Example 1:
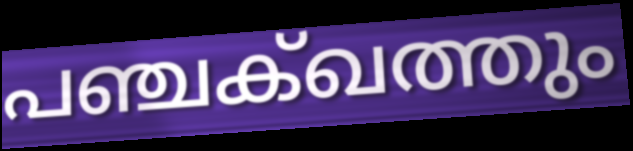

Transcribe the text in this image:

പഞ്ചക്ഖത്തും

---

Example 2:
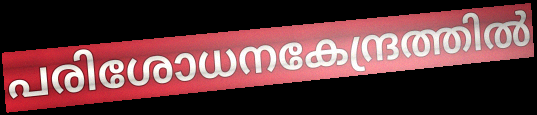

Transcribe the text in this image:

പരിശോധനകേന്ദ്രത്തിൽ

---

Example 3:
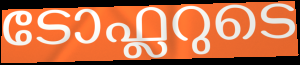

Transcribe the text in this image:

ടോഫ്ലറുടെ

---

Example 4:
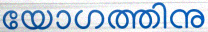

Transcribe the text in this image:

യോഗത്തിനു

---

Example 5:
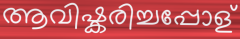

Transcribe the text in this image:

ആവിഷ്കരിച്ചപ്പോള്